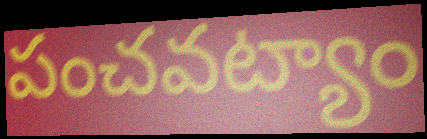
పంచవట్యాం